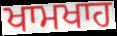
ਖਾਮਖਾਹ